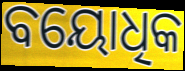
ବୟୋଧିକ